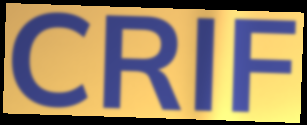
CRIF